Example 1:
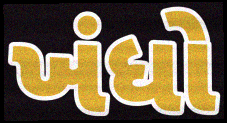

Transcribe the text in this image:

ખંધો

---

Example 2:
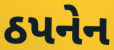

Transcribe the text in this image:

ઠપનેન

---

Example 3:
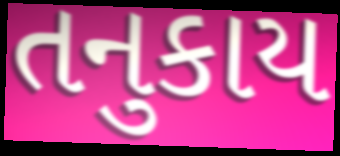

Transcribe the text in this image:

તનુકાય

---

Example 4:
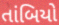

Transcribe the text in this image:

તાંબિયો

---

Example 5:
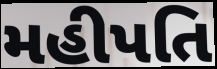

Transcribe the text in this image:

મહીપતિ